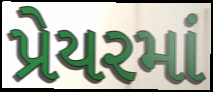
પ્રેયરમાં